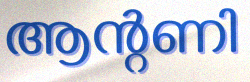
ആന്റണി